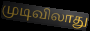
முடிவிலாது